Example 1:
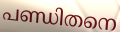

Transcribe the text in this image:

പണ്ഡിതനെ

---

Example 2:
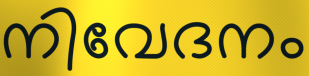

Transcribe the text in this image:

നിവേദനം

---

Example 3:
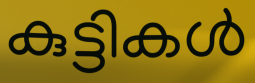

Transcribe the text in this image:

കുട്ടികൾ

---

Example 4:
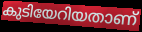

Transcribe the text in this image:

കുടിയേറിയതാണ്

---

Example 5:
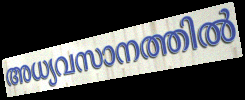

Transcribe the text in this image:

അധ്യവസാനത്തിൽ